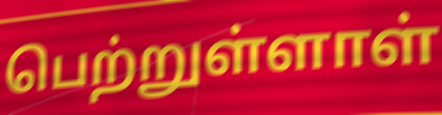
பெற்றுள்ளாள்